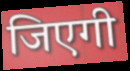
जिएगी